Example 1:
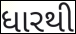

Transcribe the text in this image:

ધારથી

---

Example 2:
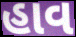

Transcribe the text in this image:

હાવ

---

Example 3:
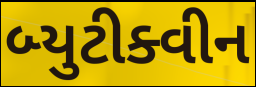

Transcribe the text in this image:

બ્યુટીક્વીન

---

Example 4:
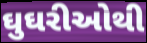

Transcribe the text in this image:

ઘુઘરીઓથી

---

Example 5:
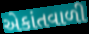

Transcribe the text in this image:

એકાંતવાળી